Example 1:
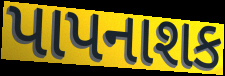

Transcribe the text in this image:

પાપનાશક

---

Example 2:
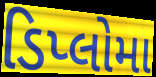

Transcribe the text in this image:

ડિપ્લોમા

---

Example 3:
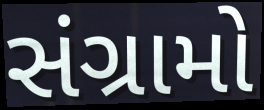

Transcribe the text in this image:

સંગ્રામો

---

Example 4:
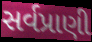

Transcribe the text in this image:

સર્વપ્રાણી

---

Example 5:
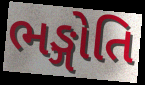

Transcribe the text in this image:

ભઙ્ગોતિ